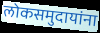
लोकसमुदायांना